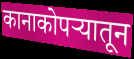
कानाकोपऱ्यातून